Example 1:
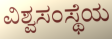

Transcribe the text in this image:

ವಿಶ್ವಸಂಸ್ಥೆಯ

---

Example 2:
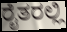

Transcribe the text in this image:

ರೈತರಲ್ಲಿ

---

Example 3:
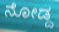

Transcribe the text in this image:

ನೋಡ್ದ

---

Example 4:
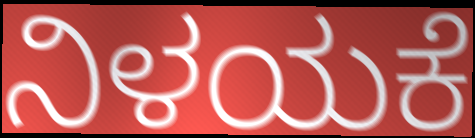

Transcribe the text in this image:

ನಿಳಯಕೆ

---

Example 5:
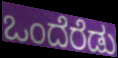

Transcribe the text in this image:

ಒಂದೆರೆಡು